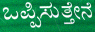
ಒಪ್ಪಿಸುತ್ತೇನೆ